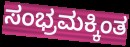
ಸಂಭ್ರಮಕ್ಕಿಂತ